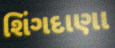
શિંગદાણા